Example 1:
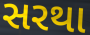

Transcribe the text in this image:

સરથા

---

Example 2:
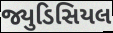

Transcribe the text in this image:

જ્યુડિસિયલ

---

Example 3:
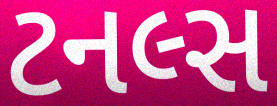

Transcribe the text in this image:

ટનલ્સ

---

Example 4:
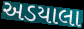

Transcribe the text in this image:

અડયાલા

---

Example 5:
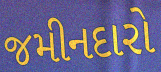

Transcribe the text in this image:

જમીનદારો